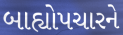
બાહ્યોપચારને